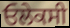
ਓਲੇਕਸੀ